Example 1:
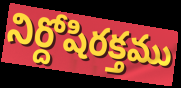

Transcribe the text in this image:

నిర్దోషిరక్తము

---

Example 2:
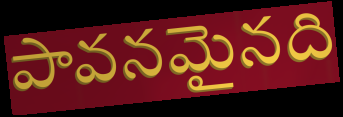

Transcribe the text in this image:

పావనమైనది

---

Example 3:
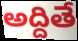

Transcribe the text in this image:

అద్దితే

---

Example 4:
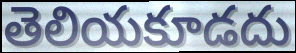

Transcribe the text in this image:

తెలియకూడదు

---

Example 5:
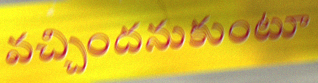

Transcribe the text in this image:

వచ్చిందనుకుంటూ